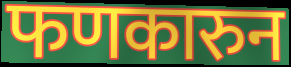
फणकारुन